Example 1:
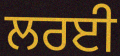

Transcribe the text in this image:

ਲਰਈ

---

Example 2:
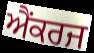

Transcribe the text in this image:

ਐਂਕਰਜ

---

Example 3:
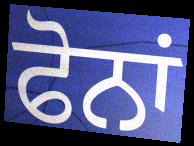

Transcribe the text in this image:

ਫੋਨਾਂ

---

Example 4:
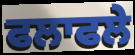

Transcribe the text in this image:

ਫਲਾਫਲੇ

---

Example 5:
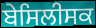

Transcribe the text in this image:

ਬੇਸਿਲੀਸਕ